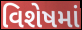
વિશેષમાં